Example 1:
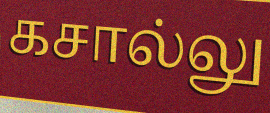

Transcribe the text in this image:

கசால்லு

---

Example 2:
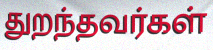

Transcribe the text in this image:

துறந்தவர்கள்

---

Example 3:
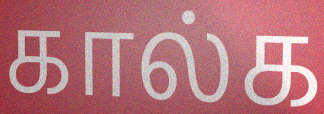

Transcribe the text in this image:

கால்க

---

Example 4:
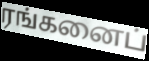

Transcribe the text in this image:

ரங்கனைப்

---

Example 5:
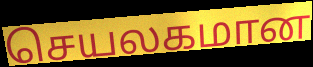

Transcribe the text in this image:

செயலகமான